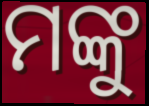
ମଙ୍କୁ